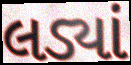
લડ્યાં